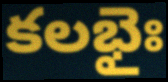
కలభైః